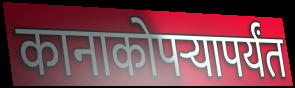
कानाकोपऱ्यापर्यंत